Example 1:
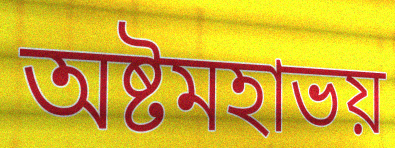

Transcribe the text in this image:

অষ্টমহাভয়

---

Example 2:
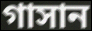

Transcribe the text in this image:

গাসান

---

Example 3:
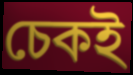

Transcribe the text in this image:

চেকই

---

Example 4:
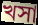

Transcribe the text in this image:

খসা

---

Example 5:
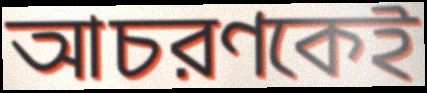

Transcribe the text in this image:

আচরণকেই